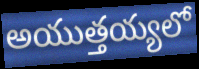
అయుత్తయ్యలో